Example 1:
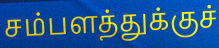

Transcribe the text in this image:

சம்பளத்துக்குச்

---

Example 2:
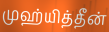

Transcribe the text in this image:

முஹ்யித்தீன்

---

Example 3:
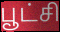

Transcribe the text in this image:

பூட்சி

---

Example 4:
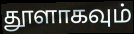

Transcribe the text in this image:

தூளாகவும்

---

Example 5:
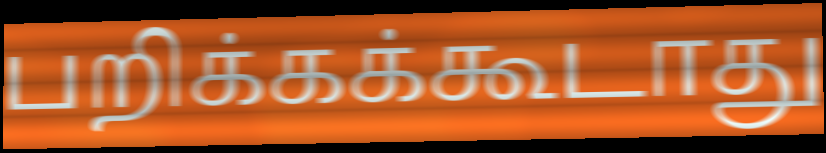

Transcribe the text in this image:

பறிக்கக்கூடாது